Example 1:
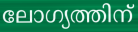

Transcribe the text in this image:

ലോഗ്യത്തിന്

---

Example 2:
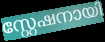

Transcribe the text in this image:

സ്റ്റേഷനായി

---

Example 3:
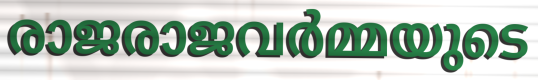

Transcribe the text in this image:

രാജരാജവർമ്മയുടെ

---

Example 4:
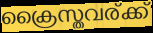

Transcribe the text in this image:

ക്രൈസ്തവര്ക്ക്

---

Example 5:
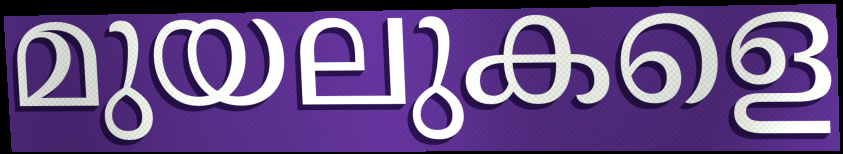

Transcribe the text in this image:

മുയലുകളെ